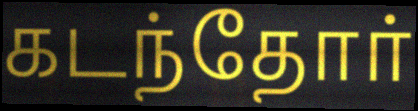
கடந்தோர்